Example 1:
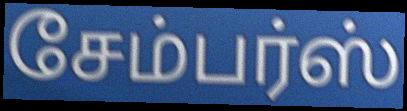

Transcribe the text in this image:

சேம்பர்ஸ்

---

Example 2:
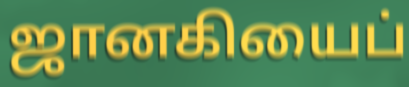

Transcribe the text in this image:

ஜானகியைப்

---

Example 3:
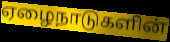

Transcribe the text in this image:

ஏழைநாடுகளின்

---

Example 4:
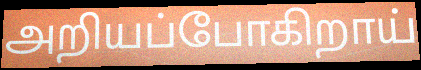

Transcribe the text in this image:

அறியப்போகிறாய்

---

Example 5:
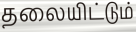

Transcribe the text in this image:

தலையிட்டும்